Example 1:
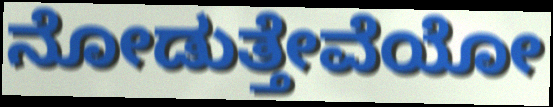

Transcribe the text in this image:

ನೋಡುತ್ತೇವೆಯೋ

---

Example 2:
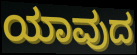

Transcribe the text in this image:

ಯಾವುದ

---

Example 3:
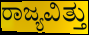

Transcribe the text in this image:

ರಾಜ್ಯವಿತ್ತು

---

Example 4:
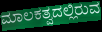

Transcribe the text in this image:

ಮಾಲಕತ್ವದಲ್ಲಿರುವ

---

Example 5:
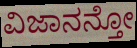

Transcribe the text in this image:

ವಿಜಾನನ್ತೋ